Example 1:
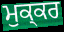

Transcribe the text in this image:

ਮੁਕ੍ਕਰ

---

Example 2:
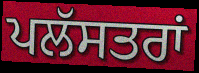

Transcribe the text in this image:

ਪਲੱਸਤਰਾਂ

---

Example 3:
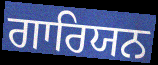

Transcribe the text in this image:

ਗਾਰਿਯਨ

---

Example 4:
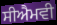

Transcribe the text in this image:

ਸੀਐਮਵੀ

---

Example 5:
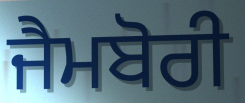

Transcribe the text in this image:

ਜੈਮਬੋਰੀ